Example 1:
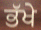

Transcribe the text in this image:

ਭੱਖੇ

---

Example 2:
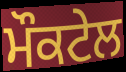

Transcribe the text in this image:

ਮੌਕਟੇਲ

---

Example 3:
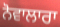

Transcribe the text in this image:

ਨੋਵਾਲਾਰਾ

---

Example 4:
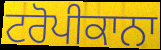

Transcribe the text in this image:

ਟਰੋਪੀਕਾਨਾ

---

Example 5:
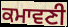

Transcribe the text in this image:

ਕਮਾਵਣੀ